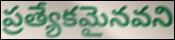
ప్రత్యేకమైనవని